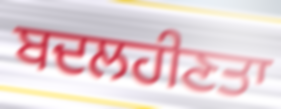
ਬਦਲਹੀਣਤਾ